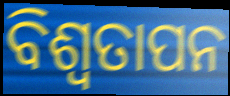
ବିଶ୍ବତାପନ